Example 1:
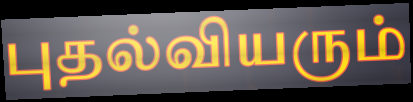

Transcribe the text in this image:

புதல்வியரும்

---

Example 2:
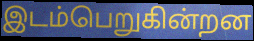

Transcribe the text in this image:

இடம்பெறுகின்றன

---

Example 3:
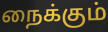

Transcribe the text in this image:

நைக்கும்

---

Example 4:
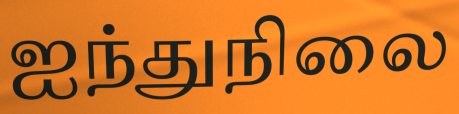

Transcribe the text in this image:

ஐந்துநிலை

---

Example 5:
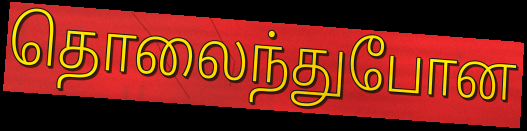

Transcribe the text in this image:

தொலைந்துபோன